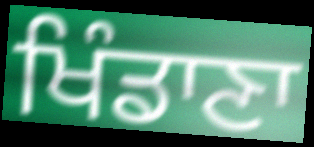
ਖਿੰਡਾਣਾ